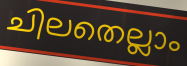
ചിലതെല്ലാം